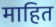
माहित